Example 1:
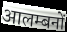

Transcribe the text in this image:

आलम्बनों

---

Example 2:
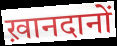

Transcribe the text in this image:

ख़ानदानों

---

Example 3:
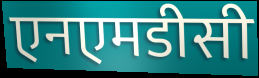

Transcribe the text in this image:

एनएमडीसी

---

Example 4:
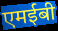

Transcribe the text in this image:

एमईबी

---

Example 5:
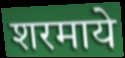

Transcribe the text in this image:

शरमाये